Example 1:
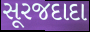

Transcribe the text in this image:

સૂરજદાદા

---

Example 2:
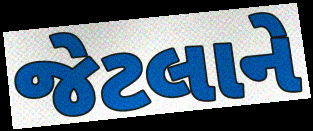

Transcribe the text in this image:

જેટલાને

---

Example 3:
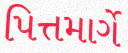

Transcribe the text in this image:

પિત્તમાર્ગે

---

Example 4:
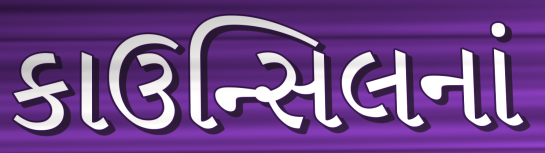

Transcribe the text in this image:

કાઉન્સિલનાં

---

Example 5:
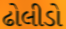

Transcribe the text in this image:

ઢોલીડો